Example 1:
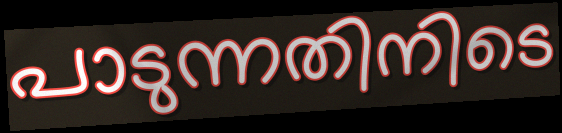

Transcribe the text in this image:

പാടുന്നതിനിടെ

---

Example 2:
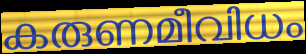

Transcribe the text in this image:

കരുണമീവിധം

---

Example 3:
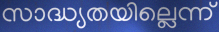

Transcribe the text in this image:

സാദ്ധ്യതയില്ലെന്ന്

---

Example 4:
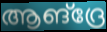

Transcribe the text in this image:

ആങ്ദ്രേ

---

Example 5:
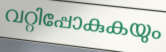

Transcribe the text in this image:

വറ്റിപ്പോകുകയും